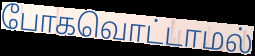
போகவொட்டாமல்